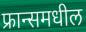
फ्रान्समधील